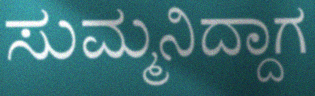
ಸುಮ್ಮನಿದ್ದಾಗ